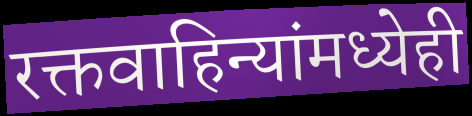
रक्तवाहिन्यांमध्येही